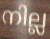
നില്ല